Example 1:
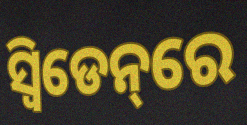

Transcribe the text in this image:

ସ୍ୱିଡେନ୍‌ରେ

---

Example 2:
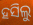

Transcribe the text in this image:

ହସିଲୁ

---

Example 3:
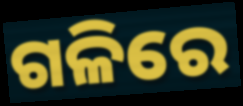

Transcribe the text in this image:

ଗଳିରେ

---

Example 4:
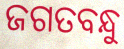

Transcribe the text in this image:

ଜଗତବନ୍ଧୁ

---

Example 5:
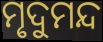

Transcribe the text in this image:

ମୃଦୁମନ୍ଦ